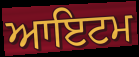
ਆਇਟਮ